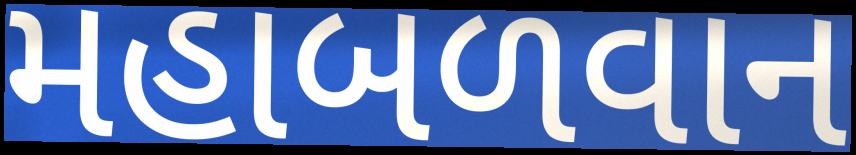
મહાબળવાન